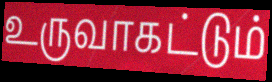
உருவாகட்டும்